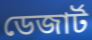
ডেজার্ট